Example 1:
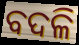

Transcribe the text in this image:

ବଦଳି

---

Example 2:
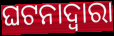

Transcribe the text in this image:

ଘଟନାଦ୍ୱାରା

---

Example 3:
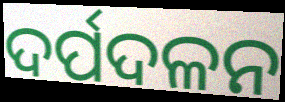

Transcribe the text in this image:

ଦର୍ପଦଳନ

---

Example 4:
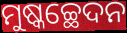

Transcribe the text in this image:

ମୁଷ୍କଚ୍ଛେଦନ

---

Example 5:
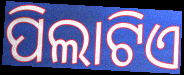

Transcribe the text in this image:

ପିଲାଟିଏ